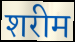
शरीम